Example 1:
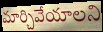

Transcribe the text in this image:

మార్చివేయాలని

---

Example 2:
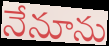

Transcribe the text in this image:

నేనూను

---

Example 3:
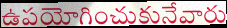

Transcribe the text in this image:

ఉపయోగించుకునేవారు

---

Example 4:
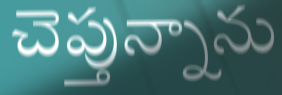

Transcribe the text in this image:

చెప్తున్నాను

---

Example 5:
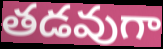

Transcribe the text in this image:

తడవుగా